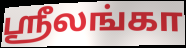
ஶ்ரீலங்கா